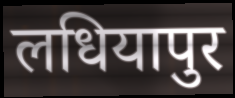
लधियापुर